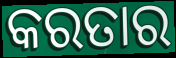
କରତାର